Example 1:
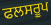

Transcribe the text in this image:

ਫਲਸਰੂਪ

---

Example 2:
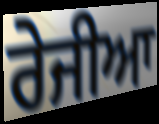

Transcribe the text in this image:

ਰੇਜੀਆ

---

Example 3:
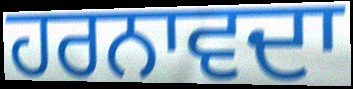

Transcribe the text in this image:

ਹਰਨਾਵਦਾ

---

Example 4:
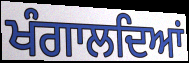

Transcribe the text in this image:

ਖੰਗਾਲਦਿਆਂ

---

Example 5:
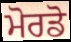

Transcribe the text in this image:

ਮੋਰਡੋ